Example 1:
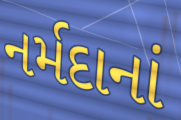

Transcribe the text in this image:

નર્મદાનાં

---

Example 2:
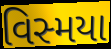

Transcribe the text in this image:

વિસ્મયા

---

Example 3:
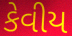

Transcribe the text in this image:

કેવીય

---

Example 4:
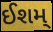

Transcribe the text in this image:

ઈશમ્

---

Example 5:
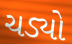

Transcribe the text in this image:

ચડ્યો